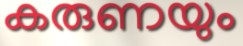
കരുണയും